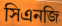
সিএনজি